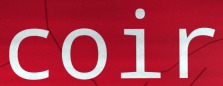
coir